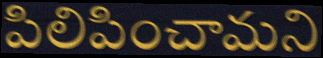
పిలిపించామని